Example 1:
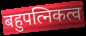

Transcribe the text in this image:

बहुपत्निकत्व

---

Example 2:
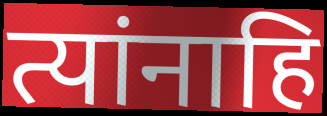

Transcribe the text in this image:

त्यांनाहि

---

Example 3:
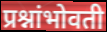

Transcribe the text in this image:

प्रश्नांभोवती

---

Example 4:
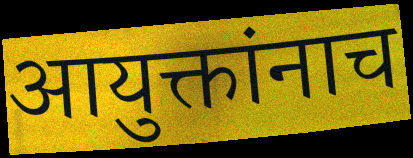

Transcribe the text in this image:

आयुक्तांनाच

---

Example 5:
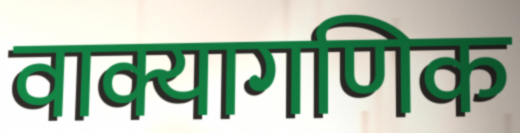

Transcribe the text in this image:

वाक्यागणिक